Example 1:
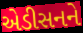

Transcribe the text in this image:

એડીસનને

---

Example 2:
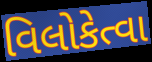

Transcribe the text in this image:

વિલોકેત્વા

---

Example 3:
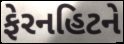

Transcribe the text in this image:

ફેરનહિટને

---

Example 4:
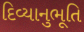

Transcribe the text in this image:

દિવ્યાનુભૂતિ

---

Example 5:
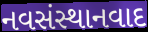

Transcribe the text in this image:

નવસંસ્થાનવાદ